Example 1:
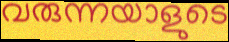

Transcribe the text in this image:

വരുന്നയാളുടെ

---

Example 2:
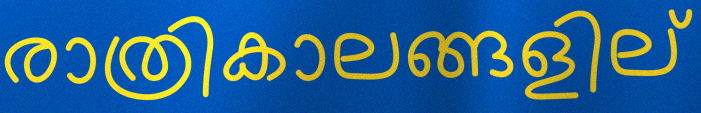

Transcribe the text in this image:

രാത്രികാലങ്ങളില്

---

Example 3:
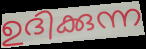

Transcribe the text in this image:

ഉദിക്കുന്ന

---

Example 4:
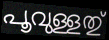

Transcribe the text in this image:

പൂവുള്ളതു്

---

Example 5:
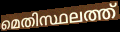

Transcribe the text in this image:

മെതിസ്ഥലത്ത്